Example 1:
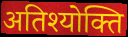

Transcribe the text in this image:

अतिश्योक्ति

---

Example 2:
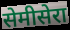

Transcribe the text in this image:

सेमीसेरा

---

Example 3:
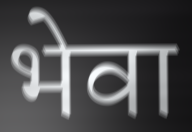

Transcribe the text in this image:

भेवा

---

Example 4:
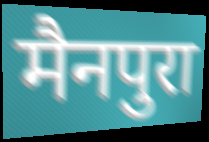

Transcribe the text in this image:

मैनपुरा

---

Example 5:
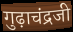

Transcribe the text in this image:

गुढ़ाचंद्रजी